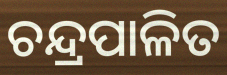
ଚନ୍ଦ୍ରପାଳିତ